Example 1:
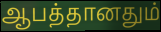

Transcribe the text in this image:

ஆபத்தானதும்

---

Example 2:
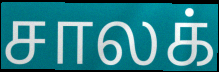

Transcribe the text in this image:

சாலக்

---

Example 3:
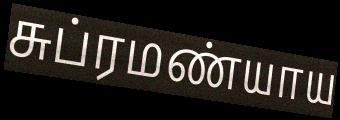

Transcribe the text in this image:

சுப்ரமண்யாய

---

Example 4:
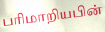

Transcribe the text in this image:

பரிமாறியபின்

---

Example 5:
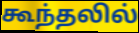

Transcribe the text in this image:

கூந்தலில்